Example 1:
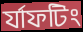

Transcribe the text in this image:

র্যাফটিং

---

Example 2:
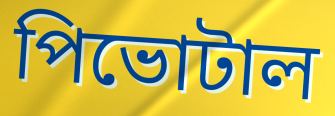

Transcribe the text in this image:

পিভোটাল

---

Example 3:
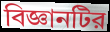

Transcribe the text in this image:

বিজ্ঞানটির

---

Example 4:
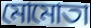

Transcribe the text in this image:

মোমোতা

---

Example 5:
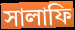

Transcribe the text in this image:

সালাফি